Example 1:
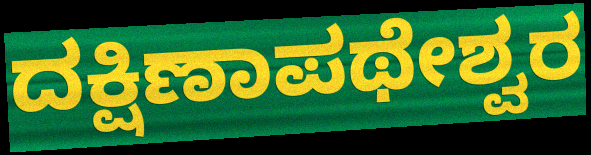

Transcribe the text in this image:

ದಕ್ಷಿಣಾಪಥೇಶ್ವರ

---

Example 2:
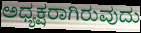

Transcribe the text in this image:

ಅಧ್ಯಕ್ಷರಾಗಿರುವುದು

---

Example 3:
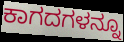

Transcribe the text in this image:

ಕಾಗದಗಳನ್ನೂ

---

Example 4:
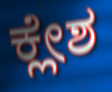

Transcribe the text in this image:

ಕ್ಲೇಶ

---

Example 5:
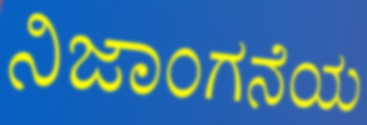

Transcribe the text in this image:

ನಿಜಾಂಗನೆಯ